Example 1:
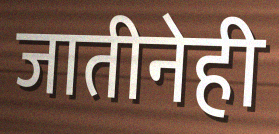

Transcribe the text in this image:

जातीनेही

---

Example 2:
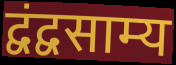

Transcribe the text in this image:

द्वंद्वसाम्य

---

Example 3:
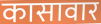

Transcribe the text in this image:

कासावार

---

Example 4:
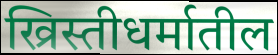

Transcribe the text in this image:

ख्रिस्तीधर्मातील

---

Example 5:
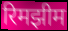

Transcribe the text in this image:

रिमझीम